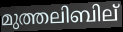
മുത്തലിബില്